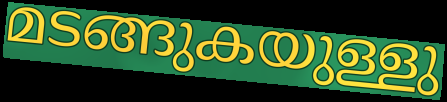
മടങ്ങുകയുള്ളു